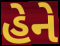
હેને